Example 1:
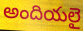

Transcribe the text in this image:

అందియలై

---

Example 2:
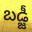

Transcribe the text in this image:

బడ్జీ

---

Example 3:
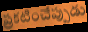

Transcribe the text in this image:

ప్రకటించేప్పుడు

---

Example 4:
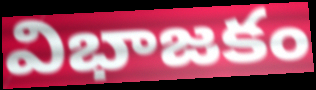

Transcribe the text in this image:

విభాజకం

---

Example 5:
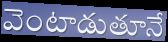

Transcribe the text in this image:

వెంటాడుతూనే